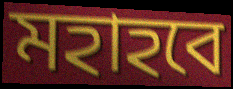
মহাহবে